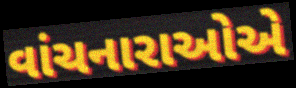
વાંચનારાઓએ